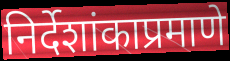
निर्देशांकाप्रमाणे